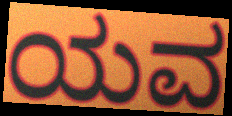
ಯವ